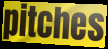
pitches